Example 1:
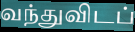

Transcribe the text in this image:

வந்துவிடப்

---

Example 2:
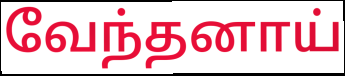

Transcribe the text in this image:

வேந்தனாய்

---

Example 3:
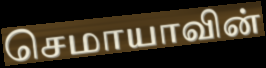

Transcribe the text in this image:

செமாயாவின்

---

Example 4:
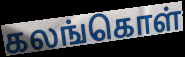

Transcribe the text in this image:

கலங்கொள்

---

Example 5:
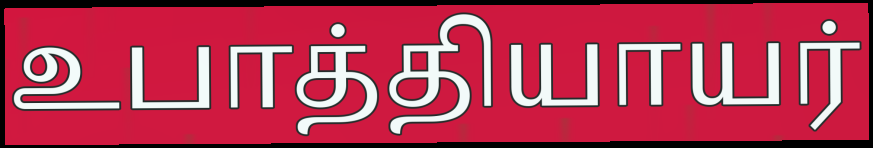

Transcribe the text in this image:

உபாத்தியாயர்